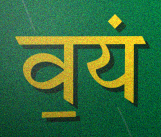
व॒यं